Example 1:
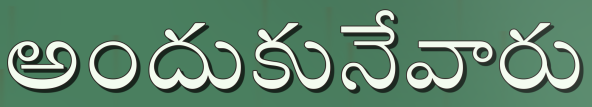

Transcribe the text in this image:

అందుకునేవారు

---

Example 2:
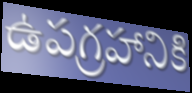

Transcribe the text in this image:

ఉపగ్రహానికి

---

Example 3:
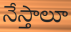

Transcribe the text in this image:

నేస్తాలూ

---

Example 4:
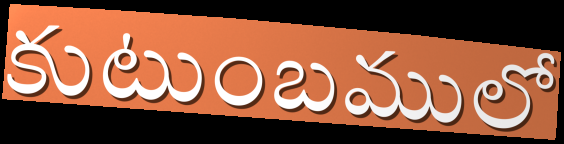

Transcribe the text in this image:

కుటుంబములో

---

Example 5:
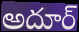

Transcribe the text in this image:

అదూర్